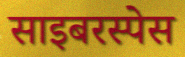
साइबरस्पेस